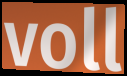
voll